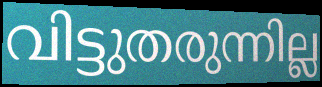
വിട്ടുതരുന്നില്ല